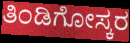
ತಿಂಡಿಗೋಸ್ಕರ